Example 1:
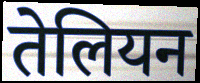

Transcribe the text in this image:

तेलियन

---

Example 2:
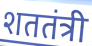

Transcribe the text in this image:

शततंत्री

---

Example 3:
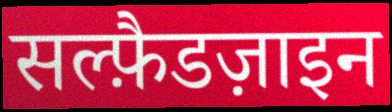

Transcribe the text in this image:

सल्फ़ैडज़ाइन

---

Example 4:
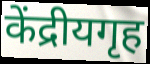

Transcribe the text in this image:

केंद्रीयगृह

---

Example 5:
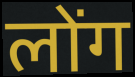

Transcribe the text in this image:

लोंग